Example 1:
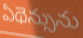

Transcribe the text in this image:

ఏథెన్సును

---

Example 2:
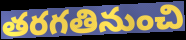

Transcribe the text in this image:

తరగతినుంచి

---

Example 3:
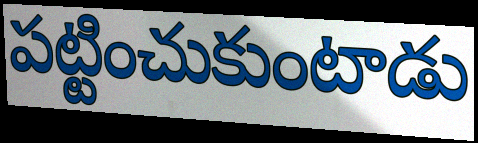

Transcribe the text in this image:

పట్టించుకుంటాడు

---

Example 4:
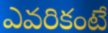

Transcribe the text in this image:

ఎవరికంటే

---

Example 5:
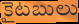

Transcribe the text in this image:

కైటబులు